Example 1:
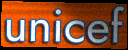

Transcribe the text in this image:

unicef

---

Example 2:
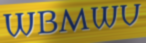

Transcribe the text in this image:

WBMWU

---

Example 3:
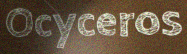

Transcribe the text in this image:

Ocyceros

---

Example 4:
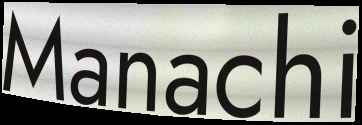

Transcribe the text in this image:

Manachi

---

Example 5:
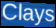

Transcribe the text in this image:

Clays